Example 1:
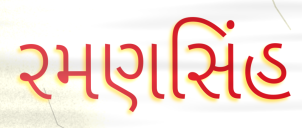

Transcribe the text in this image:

રમણસિંહ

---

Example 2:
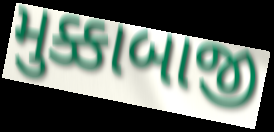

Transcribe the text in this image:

મુક્કાબાજી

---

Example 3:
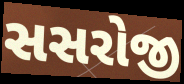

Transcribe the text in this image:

સસરોજી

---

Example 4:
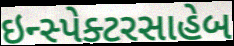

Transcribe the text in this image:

ઇન્સ્પેક્ટરસાહેબ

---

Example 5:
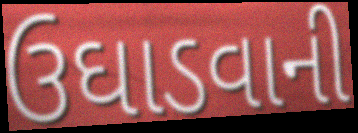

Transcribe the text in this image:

ઉઘાડવાની